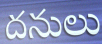
దనులు